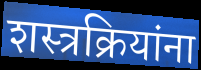
शस्त्रक्रियांना